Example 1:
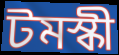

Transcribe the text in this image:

টমস্কী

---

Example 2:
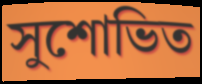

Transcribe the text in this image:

সুশোভিত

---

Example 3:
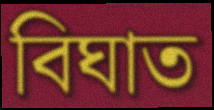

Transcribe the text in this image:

বিঘাত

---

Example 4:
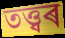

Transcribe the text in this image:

তত্ত্বৰ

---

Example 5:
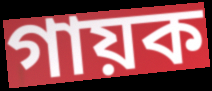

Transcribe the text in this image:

গায়ক